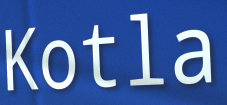
Kotla